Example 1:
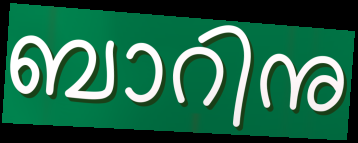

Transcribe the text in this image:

ബാറിനു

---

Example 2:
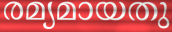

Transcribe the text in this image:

രമ്യമായതു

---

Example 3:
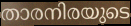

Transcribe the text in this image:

താരനിരയുടെ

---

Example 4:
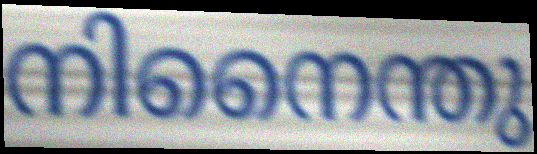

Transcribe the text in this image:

നിനൈന്തു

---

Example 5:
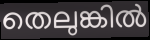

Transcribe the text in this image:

തെലുങ്കിൽ